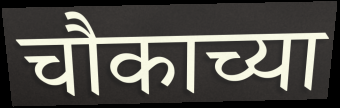
चौकाच्या